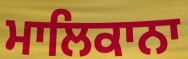
ਮਾਲਿਕਾਨਾ